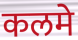
कलमे